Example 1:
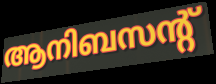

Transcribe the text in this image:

ആനിബസന്റ്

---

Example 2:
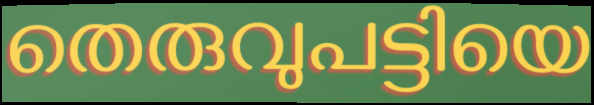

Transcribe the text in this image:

തെരുവുപട്ടിയെ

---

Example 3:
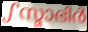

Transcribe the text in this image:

ഽസ്മാഭിർ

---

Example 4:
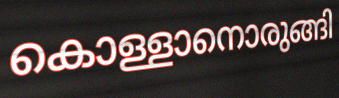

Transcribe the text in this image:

കൊള്ളാനൊരുങ്ങി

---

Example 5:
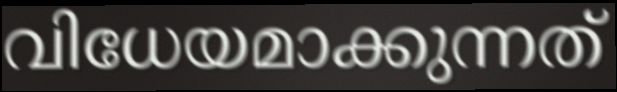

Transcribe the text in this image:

വിധേയമാക്കുന്നത്